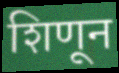
शिणून